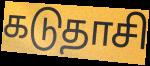
கடுதாசி